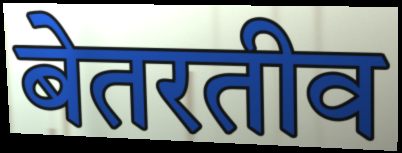
बेतरतीव